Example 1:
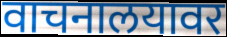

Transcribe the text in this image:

वाचनालयावर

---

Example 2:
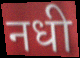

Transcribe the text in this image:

नधी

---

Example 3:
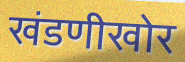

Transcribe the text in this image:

खंडणीखोर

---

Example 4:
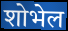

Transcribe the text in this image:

शोभेल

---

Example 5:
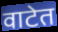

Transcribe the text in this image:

वाटेत